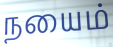
நயைம்